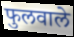
फुलवाले